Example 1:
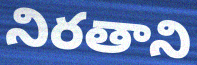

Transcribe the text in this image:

నిరతాని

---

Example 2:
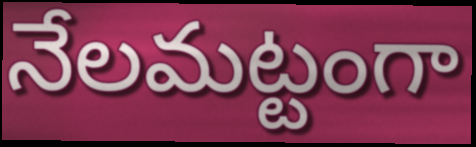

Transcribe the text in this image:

నేలమట్టంగా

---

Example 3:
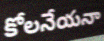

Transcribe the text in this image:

కోలనేయనా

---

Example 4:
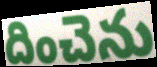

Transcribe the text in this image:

దించెను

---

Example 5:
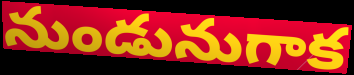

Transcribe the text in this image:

నుండునుగాక